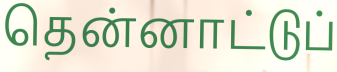
தென்னாட்டுப்